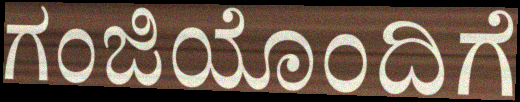
ಗಂಜಿಯೊಂದಿಗೆ